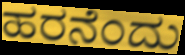
ಹರನೆಂದು